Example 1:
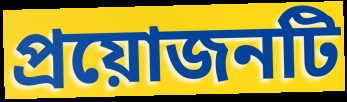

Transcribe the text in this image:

প্রয়োজনটি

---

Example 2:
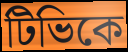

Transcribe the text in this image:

টিভিকে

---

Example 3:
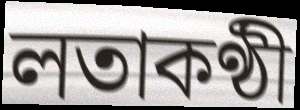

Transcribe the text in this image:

লতাকণ্ঠী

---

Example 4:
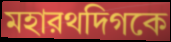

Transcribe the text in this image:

মহারথদিগকে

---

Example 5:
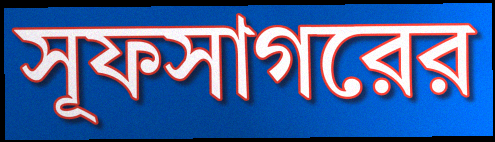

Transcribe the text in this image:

সূফসাগরের